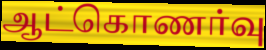
ஆட்கொணர்வு